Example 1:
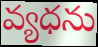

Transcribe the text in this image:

వ్యధను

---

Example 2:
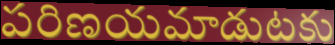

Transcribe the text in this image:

పరిణయమాడుటకు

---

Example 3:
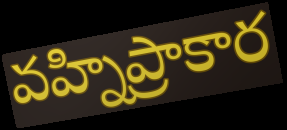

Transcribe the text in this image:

వహ్నిప్రాకార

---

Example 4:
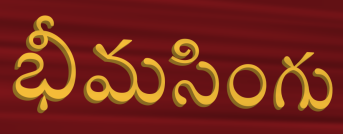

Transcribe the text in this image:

భీమసింగు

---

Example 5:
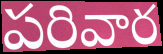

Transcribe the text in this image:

పరివార